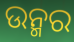
ଉନ୍ମର